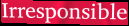
Irresponsible